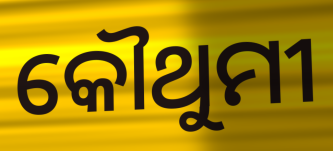
କୌଥୁମୀ